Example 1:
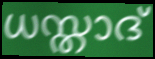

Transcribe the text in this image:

ധസ്താദ്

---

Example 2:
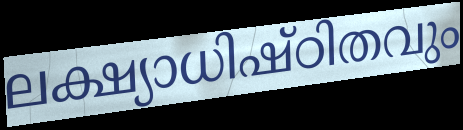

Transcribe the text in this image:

ലക്ഷ്യാധിഷ്ഠിതവും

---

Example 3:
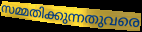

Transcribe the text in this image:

സമ്മതിക്കുന്നതുവരെ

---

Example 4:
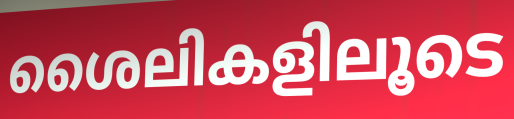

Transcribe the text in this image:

ശൈലികളിലൂടെ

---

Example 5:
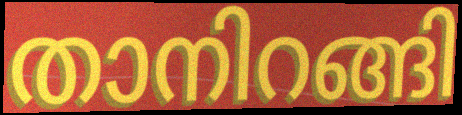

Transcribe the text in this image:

താനിറങ്ങി